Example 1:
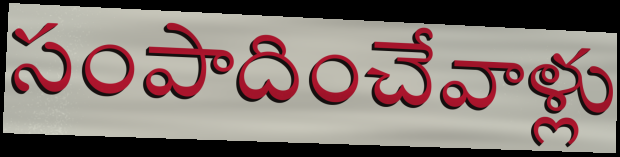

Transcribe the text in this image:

సంపాదించేవాళ్లు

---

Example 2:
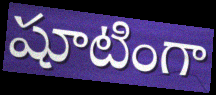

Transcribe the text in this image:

షూటింగా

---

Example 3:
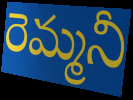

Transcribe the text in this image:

రెమ్మనీ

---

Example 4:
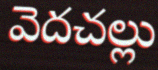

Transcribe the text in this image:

వెదచల్లు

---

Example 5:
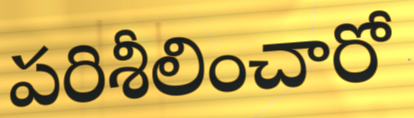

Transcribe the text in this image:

పరిశీలించారో